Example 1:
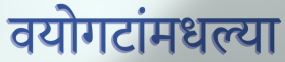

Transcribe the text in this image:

वयोगटांमधल्या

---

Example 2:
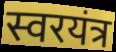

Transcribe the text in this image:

स्वरयंत्र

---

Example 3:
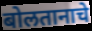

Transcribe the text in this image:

बोलतानाचे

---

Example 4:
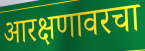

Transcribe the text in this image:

आरक्षणावरचा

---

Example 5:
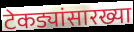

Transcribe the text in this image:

टेकड्यांसारख्या